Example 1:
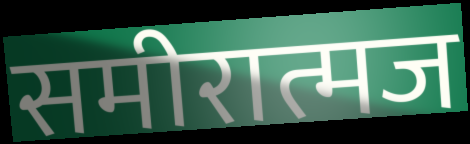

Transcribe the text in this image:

समीरात्मज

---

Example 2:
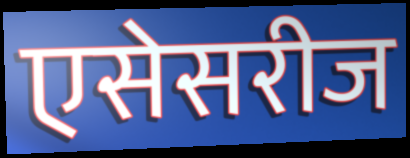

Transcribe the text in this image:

एसेसरीज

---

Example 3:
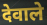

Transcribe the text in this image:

देवाले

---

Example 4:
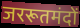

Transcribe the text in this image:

जररूतमंदों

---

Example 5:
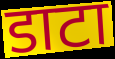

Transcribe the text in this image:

डाटा